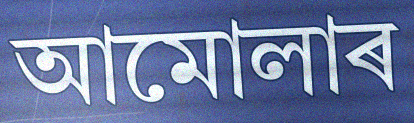
আমোলাৰ